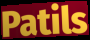
Patils